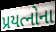
પ્રયત્નોના